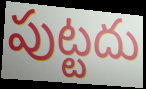
పుట్టదు